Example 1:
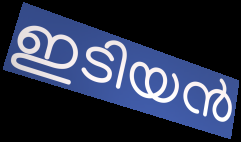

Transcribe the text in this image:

ഇടിയൻ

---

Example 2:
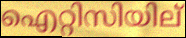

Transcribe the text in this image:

ഐറ്റിസിയില്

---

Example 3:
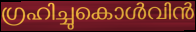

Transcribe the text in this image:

ഗ്രഹിച്ചുകൊൾവിൻ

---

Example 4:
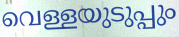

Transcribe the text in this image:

വെള്ളയുടുപ്പും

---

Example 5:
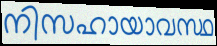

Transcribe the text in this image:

നിസഹായാവസ്ഥ